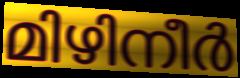
മിഴിനീർ